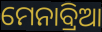
ମେନାବ୍ରିଆ